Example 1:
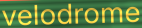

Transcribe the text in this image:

velodrome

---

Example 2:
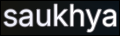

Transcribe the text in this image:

saukhya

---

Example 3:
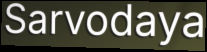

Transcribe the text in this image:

Sarvodaya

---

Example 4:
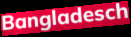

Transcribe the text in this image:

Bangladesch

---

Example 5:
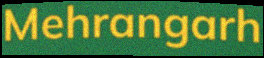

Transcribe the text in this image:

Mehrangarh